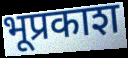
भूप्रकाश